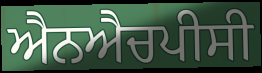
ਐਨਐਚਪੀਸੀ